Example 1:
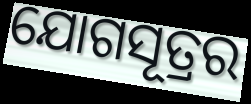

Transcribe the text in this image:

ଯୋଗସୂତ୍ରର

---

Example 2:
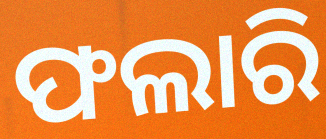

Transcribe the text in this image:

ଫଲାରି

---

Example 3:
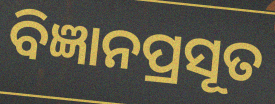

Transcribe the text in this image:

ବିଜ୍ଞାନପ୍ରସୂତ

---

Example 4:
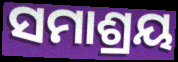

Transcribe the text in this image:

ସମାଶ୍ରୟ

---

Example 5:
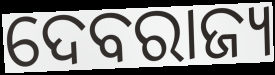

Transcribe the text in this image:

ଦେବରାଜ୍ୟ